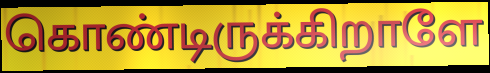
கொண்டிருக்கிறாளே